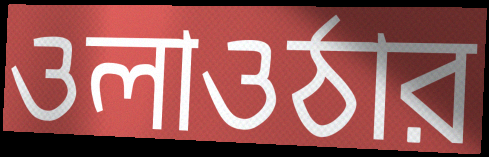
ওলাওঠার